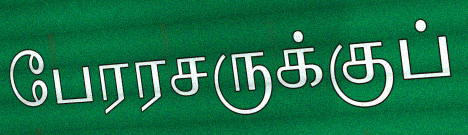
பேரரசருக்குப்